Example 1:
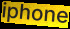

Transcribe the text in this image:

iphone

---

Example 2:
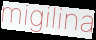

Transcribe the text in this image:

migilina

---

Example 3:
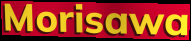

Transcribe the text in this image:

Morisawa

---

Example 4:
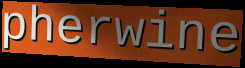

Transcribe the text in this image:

pherwine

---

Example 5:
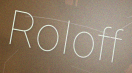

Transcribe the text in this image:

Roloff